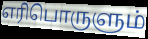
எரிபொருளும்